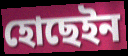
হোছেইন